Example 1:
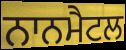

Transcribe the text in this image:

ਨਾਨਮੈਟਲ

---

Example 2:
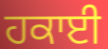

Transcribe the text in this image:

ਹਕਾਈ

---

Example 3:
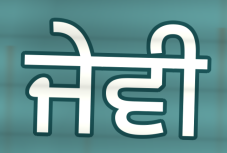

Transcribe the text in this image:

ਜੇਵੀ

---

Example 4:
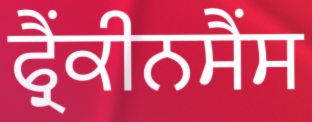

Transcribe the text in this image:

ਫ੍ਰੈਂਕੀਨਸੈਂਸ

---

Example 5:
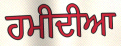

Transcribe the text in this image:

ਹਮੀਦੀਆ